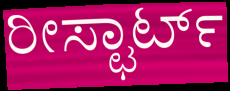
ರೀಸ್ಟಾರ್ಟ್